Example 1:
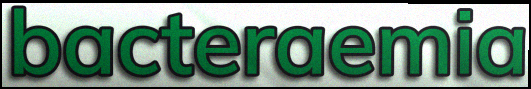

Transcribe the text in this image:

bacteraemia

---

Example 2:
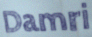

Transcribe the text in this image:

Damri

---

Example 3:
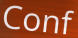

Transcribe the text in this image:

Conf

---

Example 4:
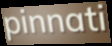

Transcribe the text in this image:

pinnati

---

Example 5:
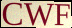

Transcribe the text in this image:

CWF